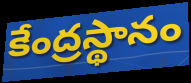
కేంద్రస్థానం